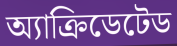
অ্যাক্রিডেটেড